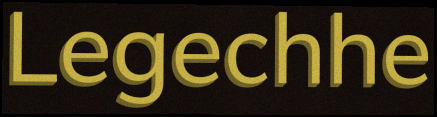
Legechhe